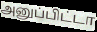
அனுப்பிட்டா